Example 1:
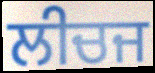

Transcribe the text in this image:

ਲੀਚਜ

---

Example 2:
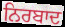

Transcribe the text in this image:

ਨਿਰਬਾਦ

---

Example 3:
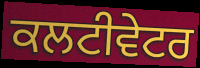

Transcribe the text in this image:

ਕਲਟੀਵੇਟਰ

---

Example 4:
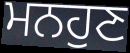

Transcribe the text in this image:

ਮਨਹੁਣ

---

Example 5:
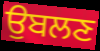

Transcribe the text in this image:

ਉਬਲਣ